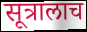
सूत्रालाच